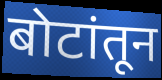
बोटांतून